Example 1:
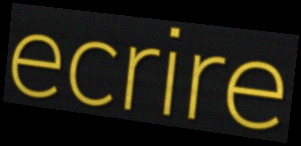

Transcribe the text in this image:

ecrire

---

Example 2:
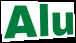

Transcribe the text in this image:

Alu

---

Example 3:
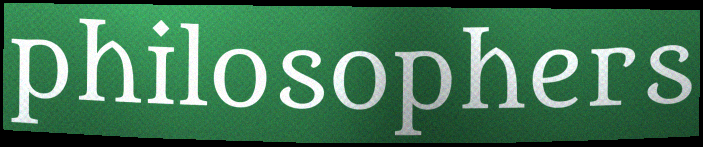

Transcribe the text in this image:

philosophers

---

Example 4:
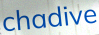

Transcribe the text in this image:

chadive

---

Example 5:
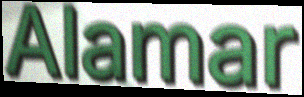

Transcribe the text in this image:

Alamar